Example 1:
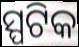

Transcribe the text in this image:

ସ୍ପଟିକ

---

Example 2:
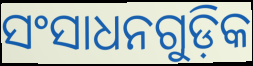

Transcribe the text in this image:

ସଂସାଧନଗୁଡ଼ିକ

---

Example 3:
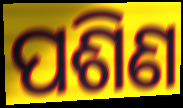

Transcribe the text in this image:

ପଶିଣ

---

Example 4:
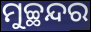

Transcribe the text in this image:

ମୁଚ୍ଛନ୍ଦର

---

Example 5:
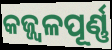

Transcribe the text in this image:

କଜ୍ଜ୍ୱଳପୂର୍ଣ୍ଣ